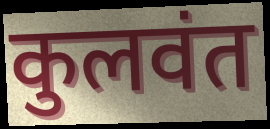
कुलवंत